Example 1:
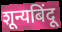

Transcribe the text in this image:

शून्यबिंदू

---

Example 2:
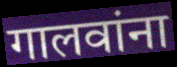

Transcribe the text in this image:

गालवांना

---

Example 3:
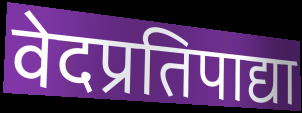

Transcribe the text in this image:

वेदप्रतिपाद्या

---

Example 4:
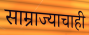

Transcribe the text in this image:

साम्राज्याचाही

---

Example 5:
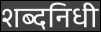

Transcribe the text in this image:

शब्दनिधी